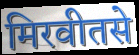
मिरवीतसे